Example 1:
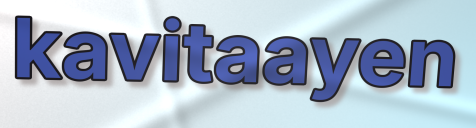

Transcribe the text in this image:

kavitaayen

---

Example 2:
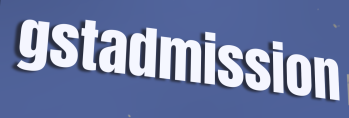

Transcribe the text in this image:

gstadmission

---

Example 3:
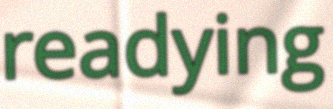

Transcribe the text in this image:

readying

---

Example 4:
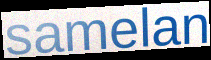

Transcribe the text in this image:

samelan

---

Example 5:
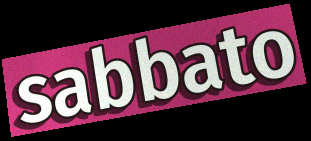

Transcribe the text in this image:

sabbato